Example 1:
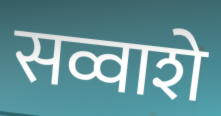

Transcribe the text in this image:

सव्वाशे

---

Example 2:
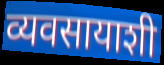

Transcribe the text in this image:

व्यवसायाशी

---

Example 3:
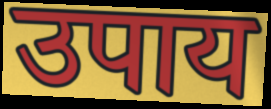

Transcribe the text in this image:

उपाय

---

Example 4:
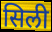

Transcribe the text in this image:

सिली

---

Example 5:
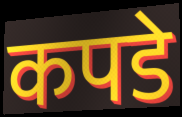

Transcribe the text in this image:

कपडे